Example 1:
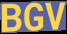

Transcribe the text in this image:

BGV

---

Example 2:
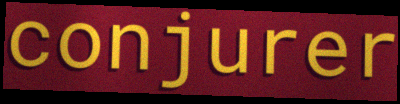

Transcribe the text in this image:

conjurer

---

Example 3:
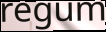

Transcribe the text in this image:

regum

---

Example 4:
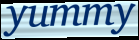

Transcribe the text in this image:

yummy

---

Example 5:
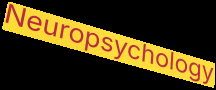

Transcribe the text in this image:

Neuropsychology